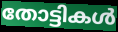
തോട്ടികൾ